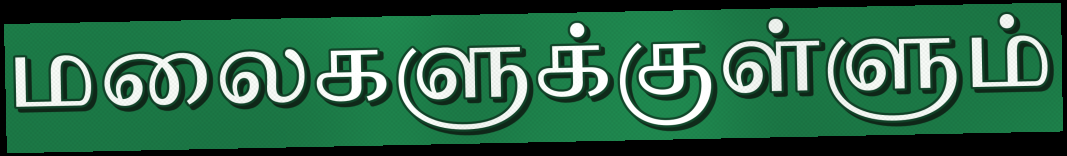
மலைகளுக்குள்ளும்